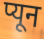
प्यून